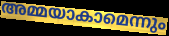
അമ്മയാകാമെന്നും